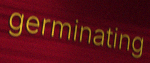
germinating